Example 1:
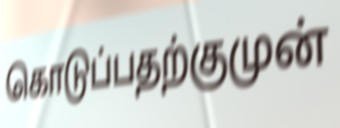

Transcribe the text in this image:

கொடுப்பதற்குமுன்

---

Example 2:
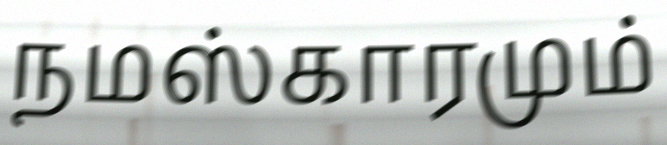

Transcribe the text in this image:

நமஸ்காரமும்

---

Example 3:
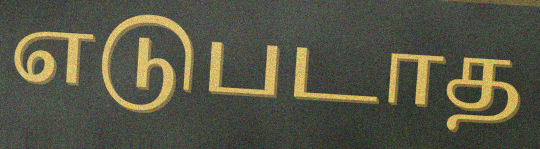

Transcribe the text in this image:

எடுபடாத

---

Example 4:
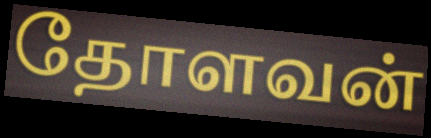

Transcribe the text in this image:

தோளவன்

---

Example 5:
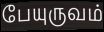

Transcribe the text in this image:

பேயுருவம்